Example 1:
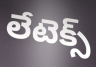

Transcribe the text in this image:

లేటెక్స్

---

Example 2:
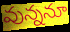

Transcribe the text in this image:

వున్ననూ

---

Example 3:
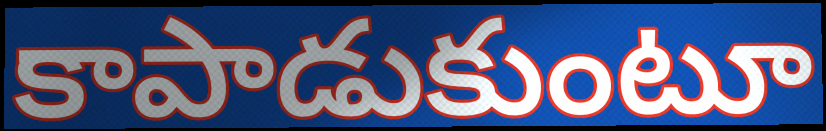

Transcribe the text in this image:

కాపాడుకుంటూ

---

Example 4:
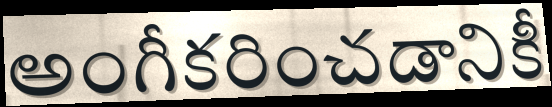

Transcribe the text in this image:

అంగీకరించడానికీ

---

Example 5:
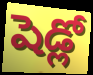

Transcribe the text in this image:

షెడ్లో